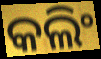
କଲିଂ